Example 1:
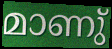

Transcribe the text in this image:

മാണു്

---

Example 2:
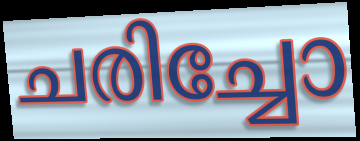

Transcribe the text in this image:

ചരിച്ചോ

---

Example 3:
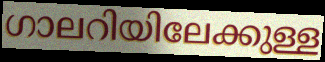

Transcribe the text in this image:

ഗാലറിയിലേക്കുള്ള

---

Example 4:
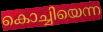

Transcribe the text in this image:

കൊച്ചിയെന്ന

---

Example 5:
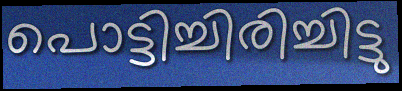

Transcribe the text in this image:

പൊട്ടിച്ചിരിച്ചിട്ടു